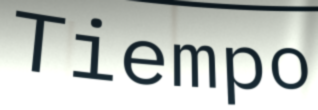
Tiempo